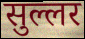
सुल्लर